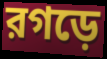
রগড়ে